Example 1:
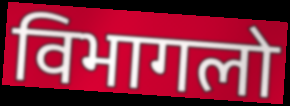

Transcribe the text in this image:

विभागलो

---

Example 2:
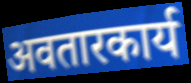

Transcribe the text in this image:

अवतारकार्य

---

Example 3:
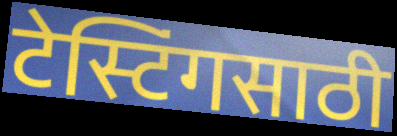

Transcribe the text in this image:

टेस्टिंगसाठी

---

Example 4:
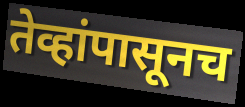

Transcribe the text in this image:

तेव्हांपासूनच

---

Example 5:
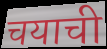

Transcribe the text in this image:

चयाची